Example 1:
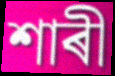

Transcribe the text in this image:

শাৰী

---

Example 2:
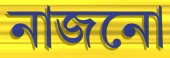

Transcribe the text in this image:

নাজনো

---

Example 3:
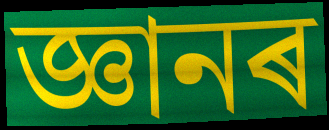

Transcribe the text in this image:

জ্ঞানৰ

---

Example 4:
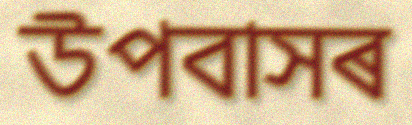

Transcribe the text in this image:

উপবাসৰ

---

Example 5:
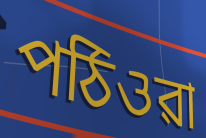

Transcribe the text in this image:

পঠিওৱা